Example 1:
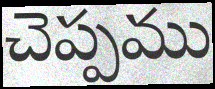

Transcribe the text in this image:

చెప్పము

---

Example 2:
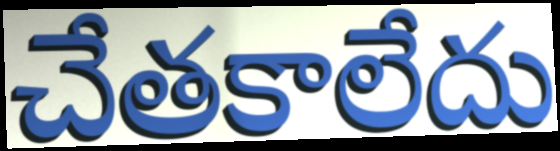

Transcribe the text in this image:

చేతకాలేదు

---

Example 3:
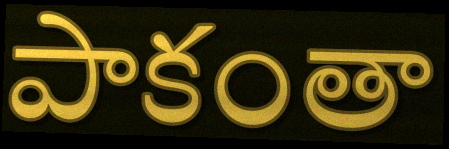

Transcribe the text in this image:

పాకంతా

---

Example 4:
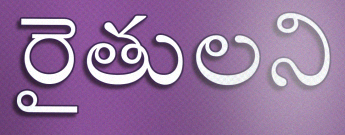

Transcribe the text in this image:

రైతులని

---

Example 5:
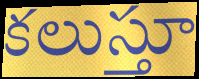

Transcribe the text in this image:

కలుస్తూ